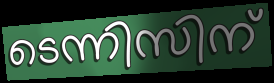
ടെന്നിസിന്